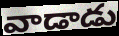
వాడాడు